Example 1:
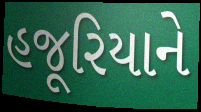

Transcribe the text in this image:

હજૂરિયાને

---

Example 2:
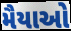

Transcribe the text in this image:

મૈયાઓ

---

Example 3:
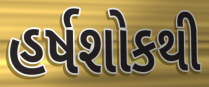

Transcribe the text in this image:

હર્ષશોકથી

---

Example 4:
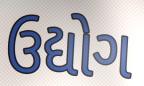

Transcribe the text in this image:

ઉદ્યોગ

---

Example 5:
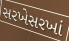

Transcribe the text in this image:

સરખેસરખાં